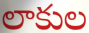
లాకుల